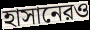
হাসানেরও